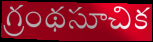
గ్రంథసూచిక